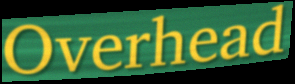
Overhead